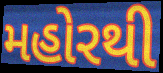
મહોરથી